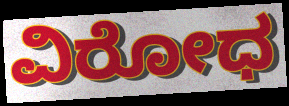
ವಿರೋಧ